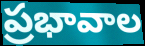
ప్రభావాల